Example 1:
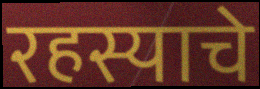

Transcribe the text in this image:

रहस्याचे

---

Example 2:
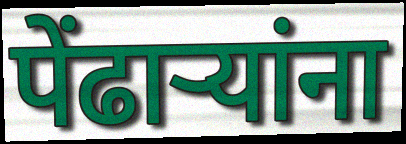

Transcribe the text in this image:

पेंढाऱ्यांना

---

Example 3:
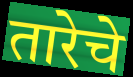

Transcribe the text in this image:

तारेचे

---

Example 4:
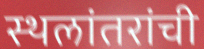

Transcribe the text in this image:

स्थलांतरांची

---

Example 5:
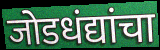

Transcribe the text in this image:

जोडधंद्यांचा